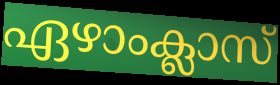
ഏഴാംക്ലാസ്